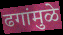
ढगांमुळे